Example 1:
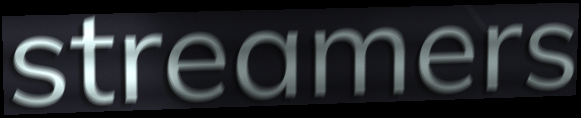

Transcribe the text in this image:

streamers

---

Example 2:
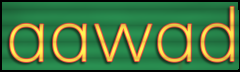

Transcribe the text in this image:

aawad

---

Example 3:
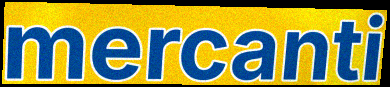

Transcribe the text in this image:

mercanti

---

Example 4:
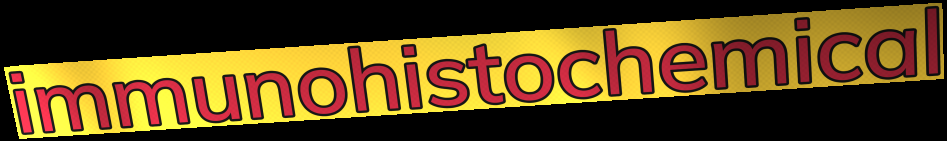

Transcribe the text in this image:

immunohistochemical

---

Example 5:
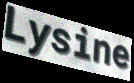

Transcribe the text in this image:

Lysine